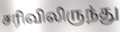
சரிவிலிருந்து